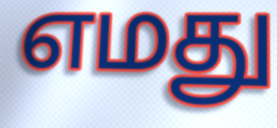
எமது